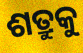
ଶତ୍ରୁକୁ